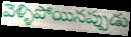
వెళ్ళిపోయినప్పుడు